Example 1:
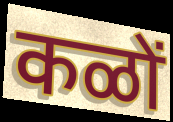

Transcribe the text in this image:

कळों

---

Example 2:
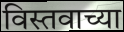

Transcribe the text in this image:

विस्तवाच्या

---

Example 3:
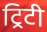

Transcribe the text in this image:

ट्रिटी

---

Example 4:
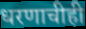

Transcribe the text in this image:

धरणाचीही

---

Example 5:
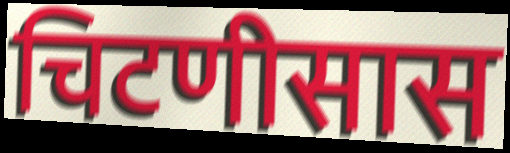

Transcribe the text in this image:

चिटणीसास